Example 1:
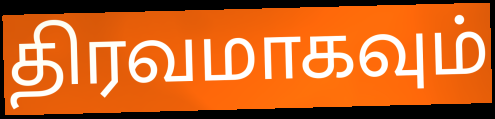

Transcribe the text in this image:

திரவமாகவும்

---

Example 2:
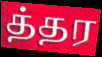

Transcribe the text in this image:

த்தர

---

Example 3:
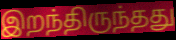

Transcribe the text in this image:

இறந்திருந்தது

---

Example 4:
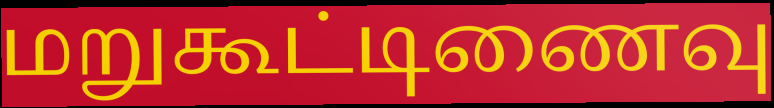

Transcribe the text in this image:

மறுகூட்டிணைவு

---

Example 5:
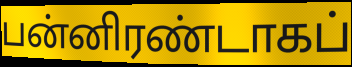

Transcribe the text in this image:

பன்னிரண்டாகப்